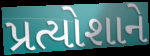
પ્રત્યોશાને